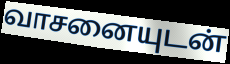
வாசனையுடன்